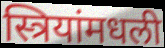
स्त्रियांमधली